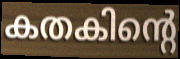
കതകിന്റെ